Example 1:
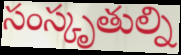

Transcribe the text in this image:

సంస్కృతుల్ని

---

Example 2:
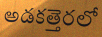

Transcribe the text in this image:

అడకత్తెరలో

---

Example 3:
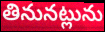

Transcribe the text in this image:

తినునట్లును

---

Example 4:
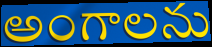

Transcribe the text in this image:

అంగాలను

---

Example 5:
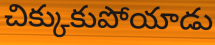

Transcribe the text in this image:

చిక్కుకుపోయాడు